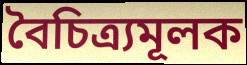
বৈচিত্ৰ্যমূলক